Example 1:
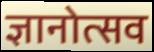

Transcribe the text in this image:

ज्ञानोत्सव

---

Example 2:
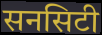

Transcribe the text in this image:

सनसिटी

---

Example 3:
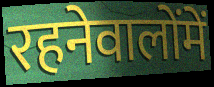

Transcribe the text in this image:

रहनेवालोंमें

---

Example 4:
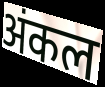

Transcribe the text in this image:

अंकल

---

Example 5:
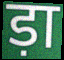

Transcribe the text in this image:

ड़ा